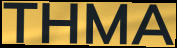
THMA